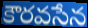
కౌరవసేన